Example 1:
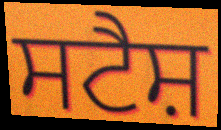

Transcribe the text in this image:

ਸਟੈਸ਼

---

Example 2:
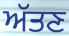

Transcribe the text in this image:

ਅੱਤਣ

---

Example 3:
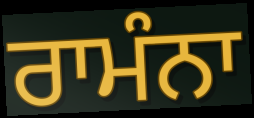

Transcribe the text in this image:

ਰਾਮੰਨਾ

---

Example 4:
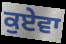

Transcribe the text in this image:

ਕੁਏਵਾ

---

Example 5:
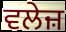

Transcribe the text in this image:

ਵਲੇਜ਼